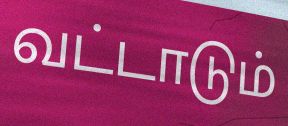
வட்டாடும்